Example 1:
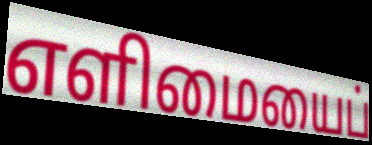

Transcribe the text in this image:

எளிமையைப்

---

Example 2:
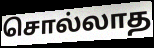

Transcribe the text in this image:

சொல்லாத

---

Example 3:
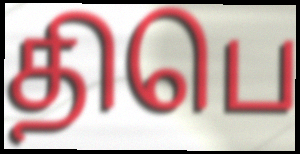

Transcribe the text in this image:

திபெ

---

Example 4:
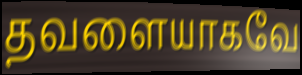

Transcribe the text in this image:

தவளையாகவே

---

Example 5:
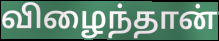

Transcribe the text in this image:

விழைந்தான்